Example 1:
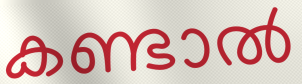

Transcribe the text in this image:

കണ്ടാൽ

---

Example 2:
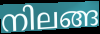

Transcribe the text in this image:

നിലങ്ങ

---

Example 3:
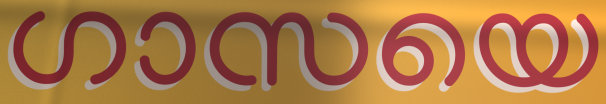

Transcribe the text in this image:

ഗാസയെ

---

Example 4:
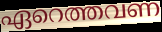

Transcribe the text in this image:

ഏറെത്തവണ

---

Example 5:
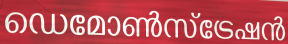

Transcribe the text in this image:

ഡെമോൺസ്ട്രേഷൻ